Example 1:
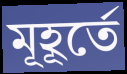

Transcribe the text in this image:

মূহূর্তে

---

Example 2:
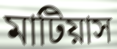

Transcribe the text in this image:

মাটিয়াস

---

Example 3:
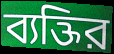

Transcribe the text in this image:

ব্যক্তির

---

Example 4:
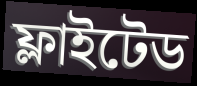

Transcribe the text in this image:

ফ্লাইটেড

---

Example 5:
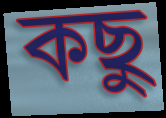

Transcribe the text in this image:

কছু